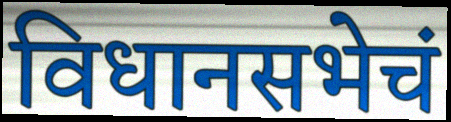
विधानसभेचं